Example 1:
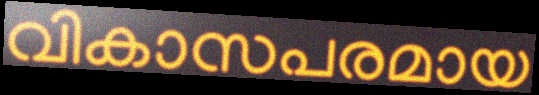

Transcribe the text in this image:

വികാസപരമായ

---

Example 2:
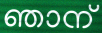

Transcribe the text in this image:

ഞാന്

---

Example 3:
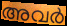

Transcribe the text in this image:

അവർ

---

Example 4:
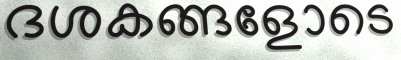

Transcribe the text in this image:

ദശകങ്ങളോടെ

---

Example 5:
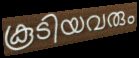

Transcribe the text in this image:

കൂടിയവരും